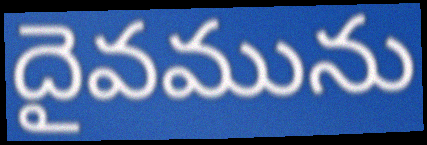
దైవమును